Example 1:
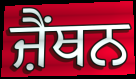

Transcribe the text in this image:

ਜ਼ੈਂਥਨ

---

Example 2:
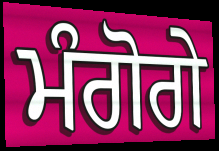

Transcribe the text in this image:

ਮੰਗੋਗੇ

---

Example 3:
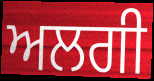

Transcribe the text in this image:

ਅਲਗੀ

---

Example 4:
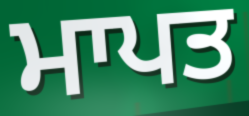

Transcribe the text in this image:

ਮਾਪਤ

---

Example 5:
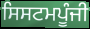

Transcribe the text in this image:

ਸਿਸਟਮਪੂੰਜੀ